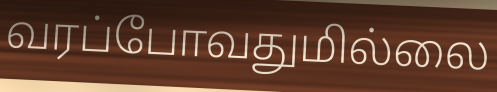
வரப்போவதுமில்லை